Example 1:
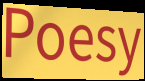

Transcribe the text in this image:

Poesy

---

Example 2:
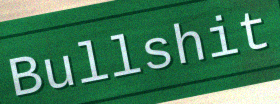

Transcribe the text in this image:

Bullshit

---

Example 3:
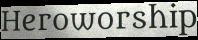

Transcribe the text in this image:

Heroworship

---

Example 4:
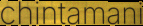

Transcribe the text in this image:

chintamani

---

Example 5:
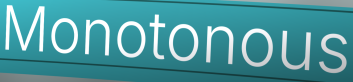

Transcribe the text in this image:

Monotonous